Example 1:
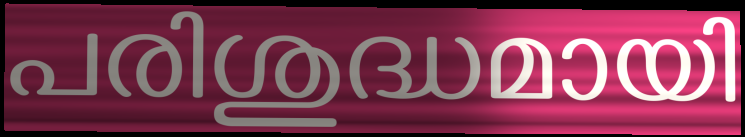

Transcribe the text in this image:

പരിശുദ്ധമായി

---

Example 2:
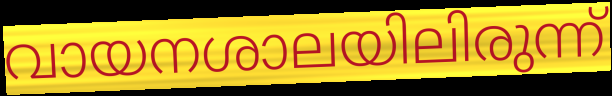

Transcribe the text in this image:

വായനശാലയിലിരുന്ന്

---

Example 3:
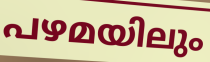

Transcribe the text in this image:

പഴമയിലും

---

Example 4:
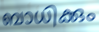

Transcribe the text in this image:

ബാധിക്കും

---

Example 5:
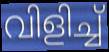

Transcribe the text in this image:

വിളിച്ച്